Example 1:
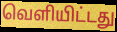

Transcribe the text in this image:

வெளியிட்டது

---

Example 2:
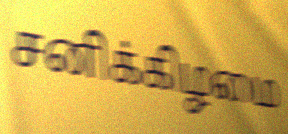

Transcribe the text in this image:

சனிக்கிழமை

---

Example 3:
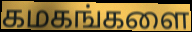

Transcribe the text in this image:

கமகங்களை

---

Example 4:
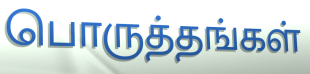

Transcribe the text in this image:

பொருத்தங்கள்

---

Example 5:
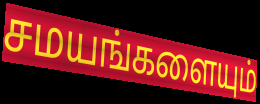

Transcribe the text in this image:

சமயங்களையும்